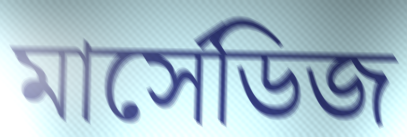
মার্সেডিজ